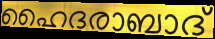
ഹൈദരാബാദ്